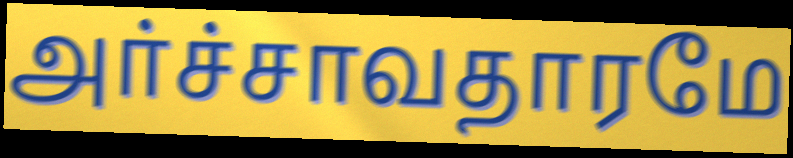
அர்ச்சாவதாரமே